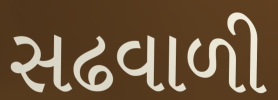
સઢવાળી